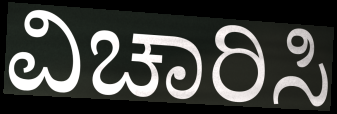
ವಿಚಾರಿಸಿ